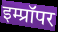
इम्प्रॉपर